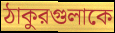
ঠাকুরগুলাকে